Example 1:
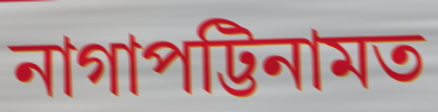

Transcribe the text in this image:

নাগাপট্টিনামত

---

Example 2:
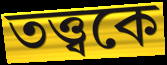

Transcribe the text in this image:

তত্ত্বকে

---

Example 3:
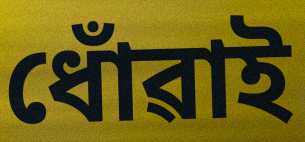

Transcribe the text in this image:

ধোঁৱাই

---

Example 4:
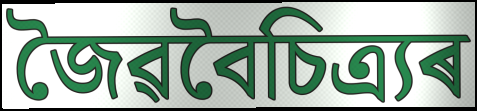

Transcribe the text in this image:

জৈৱবৈচিত্ৰ্যৰ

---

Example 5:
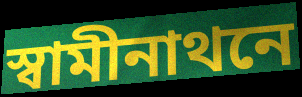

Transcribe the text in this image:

স্বামীনাথনে